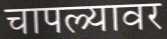
चापल्यावर